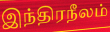
இந்திரநீலம்